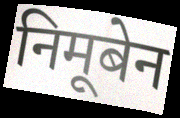
निमूबेन